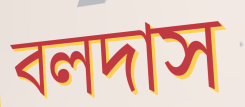
বলদাস